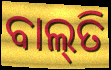
ବାଲ୍‌ତି